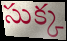
సుక్క